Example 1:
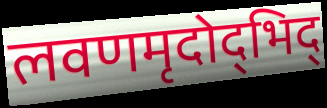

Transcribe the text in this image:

लवणमृदोद्भिद्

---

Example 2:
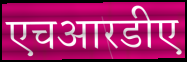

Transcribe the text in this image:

एचआरडीए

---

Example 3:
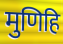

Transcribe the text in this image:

मुणिहि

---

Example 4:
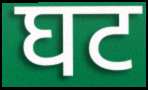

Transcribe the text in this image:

घट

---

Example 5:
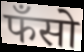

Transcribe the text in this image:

फँसो